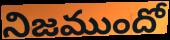
నిజముందో